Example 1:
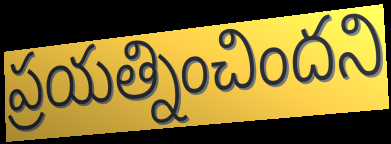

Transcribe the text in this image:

ప్రయత్నించిందని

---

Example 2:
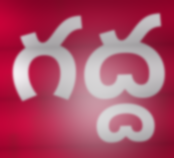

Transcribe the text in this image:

గద్ద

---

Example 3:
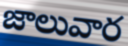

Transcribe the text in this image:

జాలువార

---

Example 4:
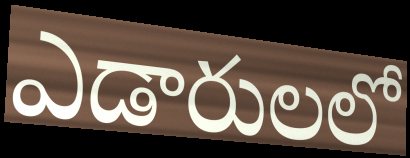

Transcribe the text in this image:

ఎడారులలో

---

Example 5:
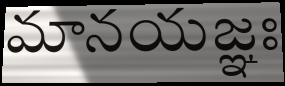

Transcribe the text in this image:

మానయజ్ఞః